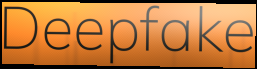
Deepfake